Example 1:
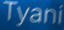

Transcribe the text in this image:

Tyani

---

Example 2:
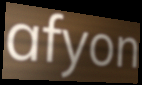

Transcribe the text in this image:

afyon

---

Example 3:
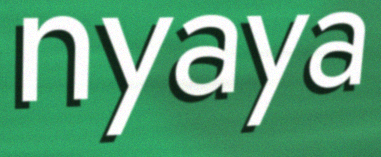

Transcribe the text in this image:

nyaya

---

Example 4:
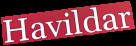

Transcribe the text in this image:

Havildar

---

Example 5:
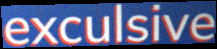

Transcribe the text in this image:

exculsive